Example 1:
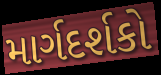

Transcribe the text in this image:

માર્ગદર્શકો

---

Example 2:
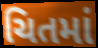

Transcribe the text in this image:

ચિતમાં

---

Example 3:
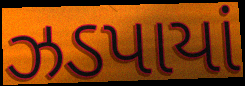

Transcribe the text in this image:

ઝડપાયાં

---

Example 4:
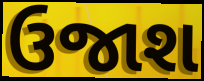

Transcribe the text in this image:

ઉજાશ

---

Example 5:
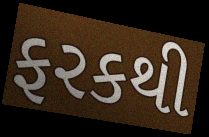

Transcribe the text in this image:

ફરકથી